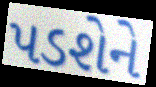
પડશેને